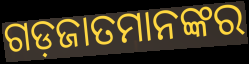
ଗଡ଼ଜାତମାନଙ୍କର